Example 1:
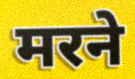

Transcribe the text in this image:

मरने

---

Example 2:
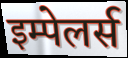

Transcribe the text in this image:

इम्पेलर्स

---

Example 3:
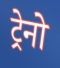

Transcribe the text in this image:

ट्रेनो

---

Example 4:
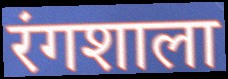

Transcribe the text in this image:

रंगशाला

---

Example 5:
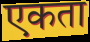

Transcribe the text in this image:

एकता